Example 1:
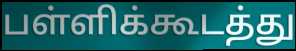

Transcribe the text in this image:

பள்ளிக்கூடத்து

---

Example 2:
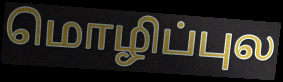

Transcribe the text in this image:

மொழிப்புல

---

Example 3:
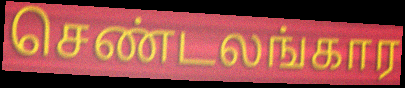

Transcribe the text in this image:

செண்டலங்கார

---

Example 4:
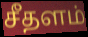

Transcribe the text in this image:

சீதளம்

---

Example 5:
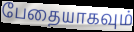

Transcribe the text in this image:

பேதையாகவும்